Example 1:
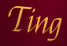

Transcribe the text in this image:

Ting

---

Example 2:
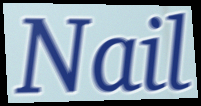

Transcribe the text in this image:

Nail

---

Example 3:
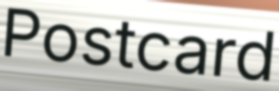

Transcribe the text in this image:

Postcard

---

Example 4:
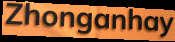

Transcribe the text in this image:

Zhonganhay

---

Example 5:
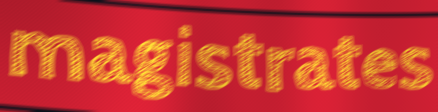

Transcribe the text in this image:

magistrates